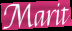
Marit